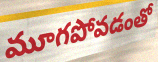
మూగపోవడంతో